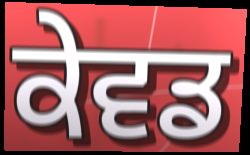
ਕੇਵਡ